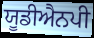
ਯੂਡੀਐਨਪੀ